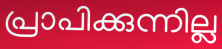
പ്രാപിക്കുന്നില്ല